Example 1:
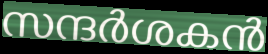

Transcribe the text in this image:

സന്ദർശകൻ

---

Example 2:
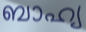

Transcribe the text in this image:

ബാഹ്യ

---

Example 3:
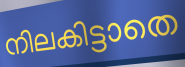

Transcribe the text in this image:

നിലകിട്ടാതെ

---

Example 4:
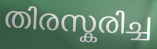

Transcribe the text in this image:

തിരസ്കരിച്ച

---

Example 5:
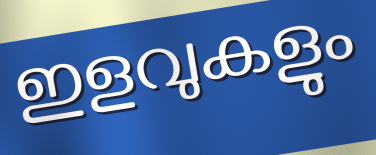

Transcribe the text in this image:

ഇളവുകളും